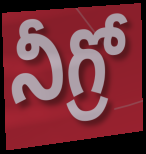
నీగ్రో